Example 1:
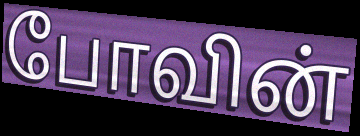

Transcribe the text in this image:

போவின்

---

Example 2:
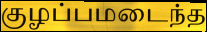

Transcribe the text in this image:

குழப்பமடைந்த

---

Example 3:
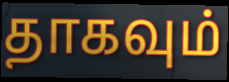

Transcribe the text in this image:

தாகவும்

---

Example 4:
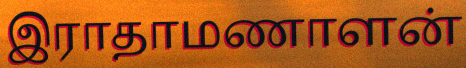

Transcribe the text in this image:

இராதாமணாளன்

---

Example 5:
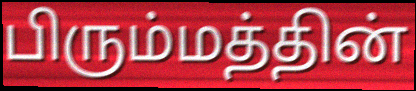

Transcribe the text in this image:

பிரும்மத்தின்